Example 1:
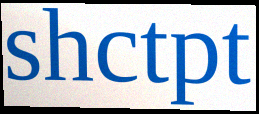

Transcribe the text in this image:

shctpt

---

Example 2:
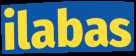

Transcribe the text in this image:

ilabas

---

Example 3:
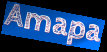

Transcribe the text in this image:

Amapa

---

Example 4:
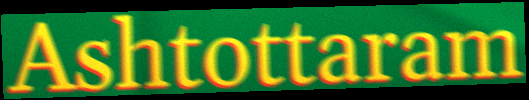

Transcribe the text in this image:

Ashtottaram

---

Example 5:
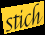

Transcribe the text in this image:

stich